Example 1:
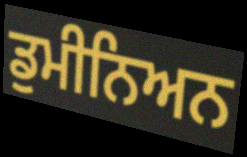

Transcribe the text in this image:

ਡੁਮੀਨਿਅਨ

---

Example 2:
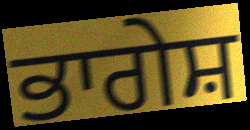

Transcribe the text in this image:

ਭਾਗੇਸ਼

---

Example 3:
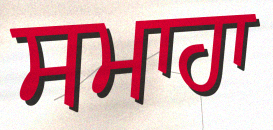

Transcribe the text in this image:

ਸਮਾਹਾ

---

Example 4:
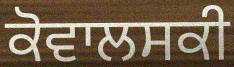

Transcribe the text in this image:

ਕੋਵਾਲਸਕੀ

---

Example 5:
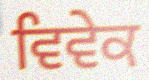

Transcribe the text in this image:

ਵਿਵੇਕ